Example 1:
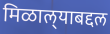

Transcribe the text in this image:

मिळाल्याबद्दल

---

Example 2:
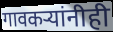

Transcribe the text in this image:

गावकऱ्यांनीही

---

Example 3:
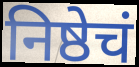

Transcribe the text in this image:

निष्ठेचं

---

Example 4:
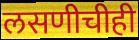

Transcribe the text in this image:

लसणीचीही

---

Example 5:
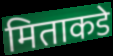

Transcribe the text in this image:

मिताकडे